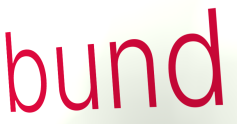
bund